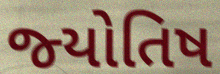
જ્‍યોતિષ